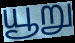
யூறு